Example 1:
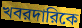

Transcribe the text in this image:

খবরদারিকে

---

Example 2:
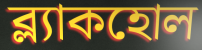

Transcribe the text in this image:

ব্ল্যাকহোল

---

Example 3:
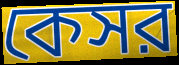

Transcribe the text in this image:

কেসর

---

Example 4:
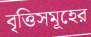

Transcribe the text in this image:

বৃত্তিসমূহের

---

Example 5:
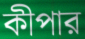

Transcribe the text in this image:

কীপার